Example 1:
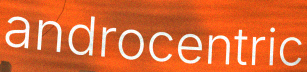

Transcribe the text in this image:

androcentric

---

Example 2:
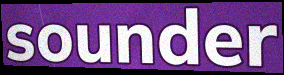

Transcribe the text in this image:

sounder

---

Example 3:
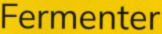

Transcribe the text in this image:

Fermenter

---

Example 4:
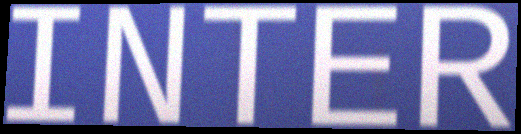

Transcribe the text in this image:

INTER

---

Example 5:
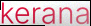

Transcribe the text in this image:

kerana